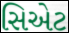
સિએટ